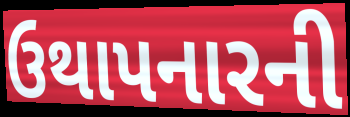
ઉથાપનારની